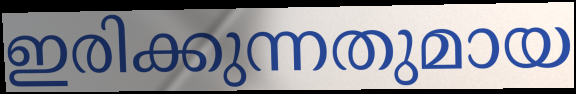
ഇരിക്കുന്നതുമായ